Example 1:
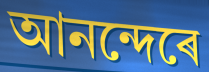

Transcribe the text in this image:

আনন্দেৰে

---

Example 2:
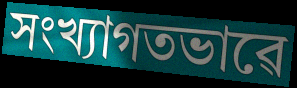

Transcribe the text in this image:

সংখ্যাগতভাৱে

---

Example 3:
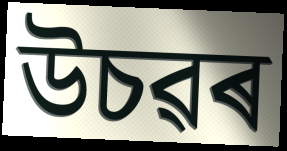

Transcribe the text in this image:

উচৱৰ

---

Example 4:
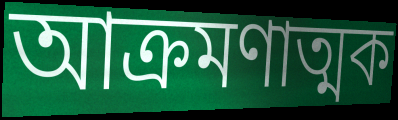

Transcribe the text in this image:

আক্ৰমণাত্মক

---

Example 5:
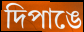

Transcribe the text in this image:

দিপাঙে